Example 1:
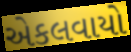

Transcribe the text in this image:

એકલવાયો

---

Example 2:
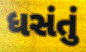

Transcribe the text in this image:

ધસંતું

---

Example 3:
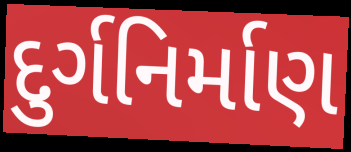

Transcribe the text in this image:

દુર્ગનિર્માણ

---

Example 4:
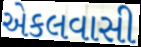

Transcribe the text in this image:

એકલવાસી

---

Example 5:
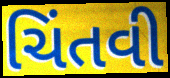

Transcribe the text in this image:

ચિંતવી